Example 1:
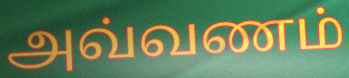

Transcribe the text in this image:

அவ்வணம்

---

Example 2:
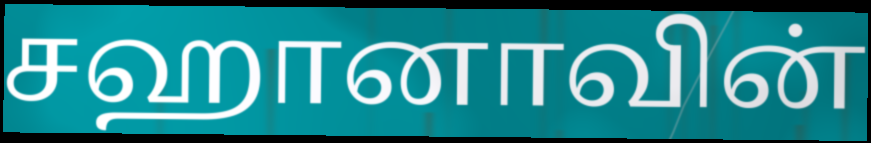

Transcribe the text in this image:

சஹானாவின்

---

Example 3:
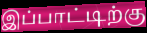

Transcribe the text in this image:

இப்பாட்டிற்கு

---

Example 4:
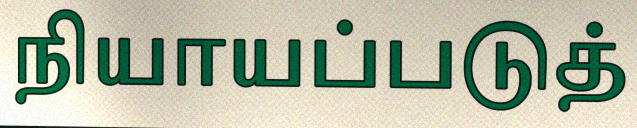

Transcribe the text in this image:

நியாயப்படுத்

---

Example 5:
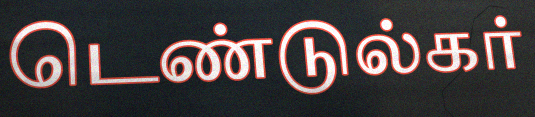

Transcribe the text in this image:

டெண்டுல்கர்